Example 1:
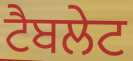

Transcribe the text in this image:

ਟੈਬਲੇਟ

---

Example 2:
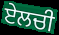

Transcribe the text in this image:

ਏਲਚੀ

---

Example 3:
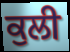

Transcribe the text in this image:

ਕੁਲੀ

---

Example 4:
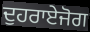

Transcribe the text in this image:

ਦੁਹਰਾਏਜੋਗ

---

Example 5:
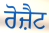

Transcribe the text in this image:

ਰੋਜ਼ੈਟ